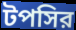
টপসির